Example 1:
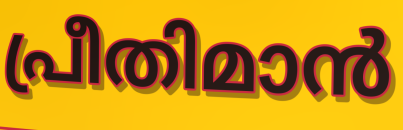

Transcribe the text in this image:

പ്രീതിമാൻ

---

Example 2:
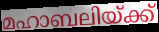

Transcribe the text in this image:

മഹാബലിയ്ക്ക്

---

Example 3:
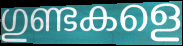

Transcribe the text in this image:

ഗുണ്ടകളെ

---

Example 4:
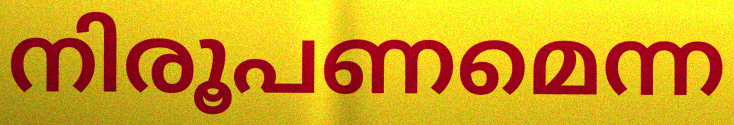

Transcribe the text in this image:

നിരൂപണമെന്ന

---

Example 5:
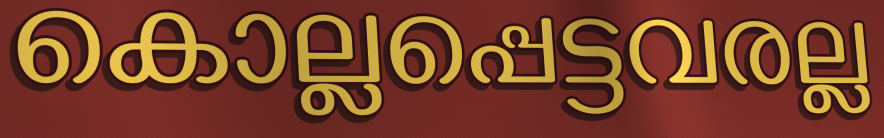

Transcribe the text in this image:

കൊല്ലപ്പെട്ടവരല്ല